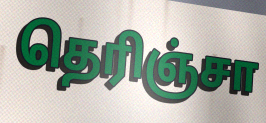
தெரிஞ்சா